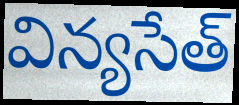
విన్యసేత్